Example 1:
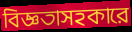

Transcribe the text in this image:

বিজ্ঞতাসহকারে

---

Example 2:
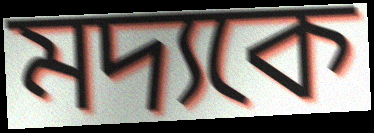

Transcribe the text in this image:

মদ্যকে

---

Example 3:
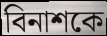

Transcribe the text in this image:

বিনাশকে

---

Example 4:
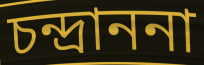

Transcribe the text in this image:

চন্দ্রাননা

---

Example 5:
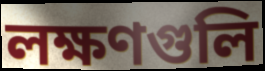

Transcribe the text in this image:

লক্ষণগুলি